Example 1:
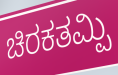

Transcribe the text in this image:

ಚಿರಕತಮ್ಪಿ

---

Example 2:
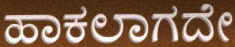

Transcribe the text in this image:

ಹಾಕಲಾಗದೇ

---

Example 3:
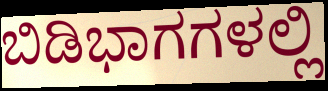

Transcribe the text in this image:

ಬಿಡಿಭಾಗಗಳಲ್ಲಿ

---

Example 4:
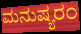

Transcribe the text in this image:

ಮನುಷ್ಯರಂ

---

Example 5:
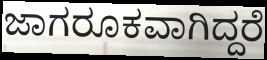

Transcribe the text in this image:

ಜಾಗರೂಕವಾಗಿದ್ದರೆ